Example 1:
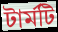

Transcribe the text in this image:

টার্মটি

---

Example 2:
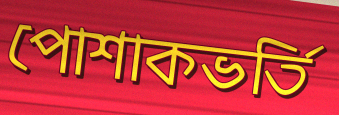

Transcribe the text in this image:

পোশাকভর্তি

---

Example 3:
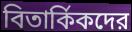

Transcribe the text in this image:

বিতার্কিকদের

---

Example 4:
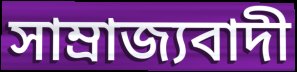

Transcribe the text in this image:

সাম্রাজ্যবাদী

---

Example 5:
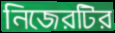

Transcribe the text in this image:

নিজেরটির